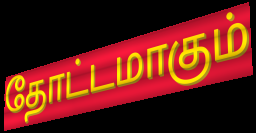
தோட்டமாகும்